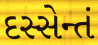
દસ્સેન્તં